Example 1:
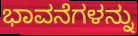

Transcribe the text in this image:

ಭಾವನೆಗಳನ್ನು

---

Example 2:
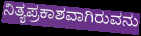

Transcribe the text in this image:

ನಿತ್ಯಪ್ರಕಾಶವಾಗಿರುವನು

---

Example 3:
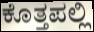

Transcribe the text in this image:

ಕೊತ್ತಪಲ್ಲಿ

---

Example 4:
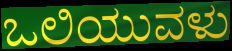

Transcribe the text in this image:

ಒಲಿಯುವಳು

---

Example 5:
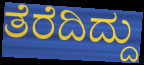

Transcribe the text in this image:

ತೆರೆದಿದ್ದು